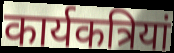
कार्यकत्रियां